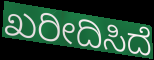
ಖರೀದಿಸಿದೆ